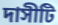
দাসীটি